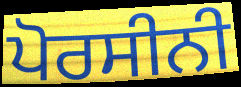
ਪੋਰਸੀਨੀ